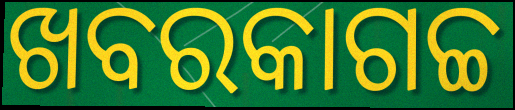
ଖବରକାଗଚ୍ଚ